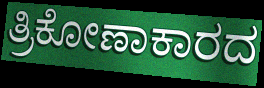
ತ್ರಿಕೋಣಾಕಾರದ